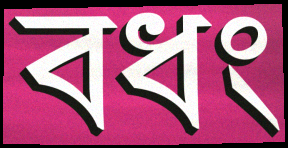
বধং